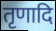
तृणादि